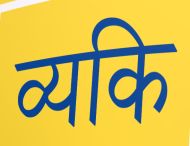
व्यकि